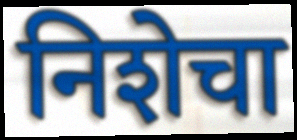
निशेचा